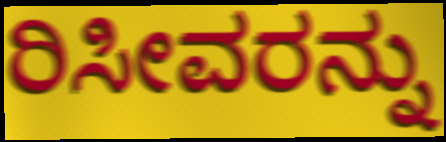
ರಿಸೀವರನ್ನು